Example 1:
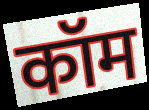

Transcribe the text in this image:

कॉम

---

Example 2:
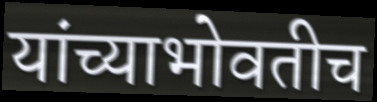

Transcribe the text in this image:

यांच्याभोवतीच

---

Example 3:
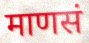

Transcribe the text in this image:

माणसं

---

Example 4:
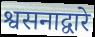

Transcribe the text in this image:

श्वसनाद्वारे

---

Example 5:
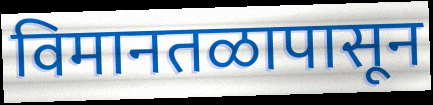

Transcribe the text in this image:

विमानतळापासून